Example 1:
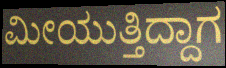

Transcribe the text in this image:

ಮೀಯುತ್ತಿದ್ದಾಗ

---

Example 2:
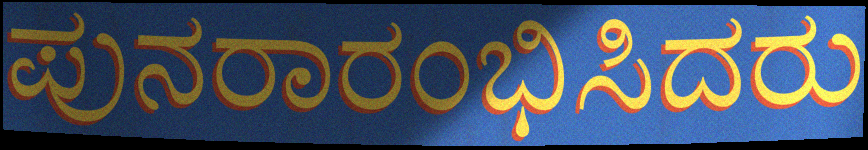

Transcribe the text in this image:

ಪುನರಾರಂಭಿಸಿದರು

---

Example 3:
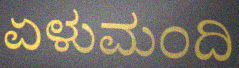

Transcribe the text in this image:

ಏಳುಮಂದಿ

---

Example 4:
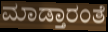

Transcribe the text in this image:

ಮಾಡ್ತಾರಂತೆ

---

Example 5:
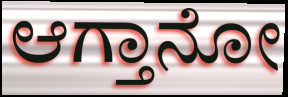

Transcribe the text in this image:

ಆಗ್ತಾನೋ